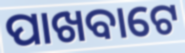
ପାଖବାଟେ